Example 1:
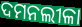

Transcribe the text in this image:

ଦମନଲୀଳା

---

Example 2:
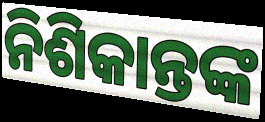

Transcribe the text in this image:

ନିଶିକାନ୍ତଙ୍କ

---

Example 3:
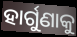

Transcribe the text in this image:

ହାର୍ଗୁଣାକୁ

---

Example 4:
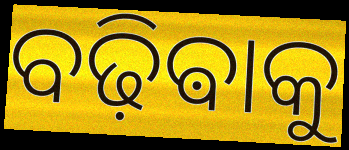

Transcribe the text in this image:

ବଢ଼ିଵାକୁ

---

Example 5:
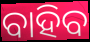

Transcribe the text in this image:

ବାହିବ